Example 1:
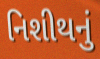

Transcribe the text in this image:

નિશીથનું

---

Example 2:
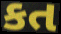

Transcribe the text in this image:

કત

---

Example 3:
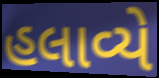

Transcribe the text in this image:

હલાવ્યે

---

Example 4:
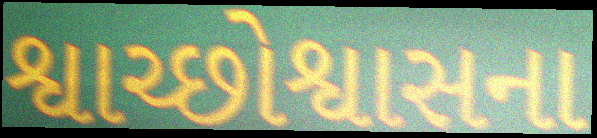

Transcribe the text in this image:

શ્વાચ્છોશ્વાસના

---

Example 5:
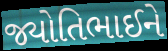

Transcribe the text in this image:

જ્યોતિભાઈને